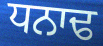
ਧਨਾਢ